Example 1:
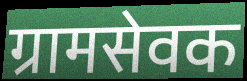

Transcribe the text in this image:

ग्रामसेवक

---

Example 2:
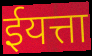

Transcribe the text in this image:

ईयत्ता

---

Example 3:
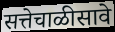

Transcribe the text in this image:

सत्तेचाळीसावे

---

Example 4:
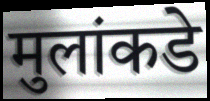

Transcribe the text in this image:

मुलांकडे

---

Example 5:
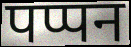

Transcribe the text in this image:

पप्पन